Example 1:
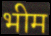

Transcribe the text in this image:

भीम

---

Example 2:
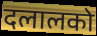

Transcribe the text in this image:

दलालको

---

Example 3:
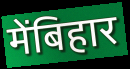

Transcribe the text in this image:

मेंबिहार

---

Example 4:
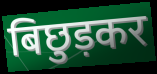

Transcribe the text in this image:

बिछुड़कर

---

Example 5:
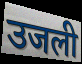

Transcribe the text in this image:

उजली